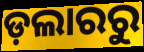
ଡ଼ଲାରରୁ